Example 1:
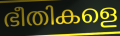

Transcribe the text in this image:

ഭീതികളെ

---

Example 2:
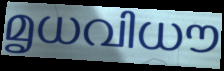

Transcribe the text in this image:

മൃധവിധൗ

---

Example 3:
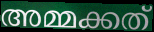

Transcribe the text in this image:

അമ്മക്കത്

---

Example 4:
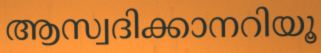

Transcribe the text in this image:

ആസ്വദിക്കാനറിയൂ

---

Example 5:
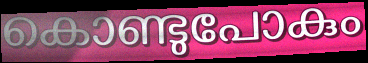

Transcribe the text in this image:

കൊണ്ടുപോകും